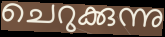
ചെറുക്കുന്നു